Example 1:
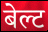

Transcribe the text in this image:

बेल्ट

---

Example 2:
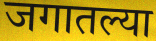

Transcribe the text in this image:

जगातल्या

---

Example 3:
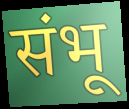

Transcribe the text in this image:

संभू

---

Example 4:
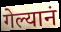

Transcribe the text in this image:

गेल्यानं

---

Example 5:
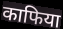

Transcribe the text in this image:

काफिया